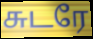
சுடரே